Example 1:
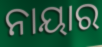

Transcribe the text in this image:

ନାୟାର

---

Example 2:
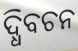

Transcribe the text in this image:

ଦ୍ଧିବଚନ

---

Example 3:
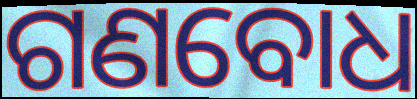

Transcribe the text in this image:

ଗଣବୋଧ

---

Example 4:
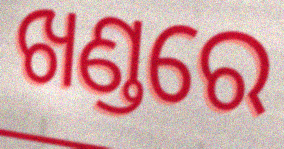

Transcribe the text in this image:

ଖଣ୍ଡରେ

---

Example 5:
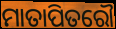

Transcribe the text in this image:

ମାତାପିତରୌ